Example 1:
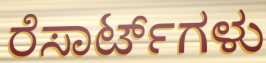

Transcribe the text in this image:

ರೆಸಾರ್ಟ್‌ಗಳು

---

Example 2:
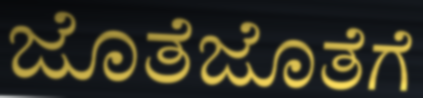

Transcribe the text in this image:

ಜೊತೆಜೊತೆಗೆ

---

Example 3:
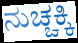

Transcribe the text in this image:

ನುಚ್ಚಕ್ಕಿ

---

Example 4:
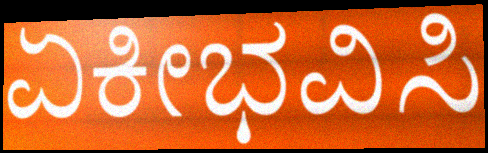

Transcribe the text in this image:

ಏಕೀಭವಿಸಿ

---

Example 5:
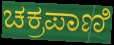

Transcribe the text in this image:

ಚಕ್ರಪಾಣಿ